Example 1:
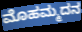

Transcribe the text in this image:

ಮೊಹಮ್ಮದನ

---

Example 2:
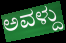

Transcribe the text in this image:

ಅವಳ್ದು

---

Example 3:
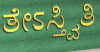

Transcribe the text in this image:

ತೇಽಸ್ತ್ವಿತಿ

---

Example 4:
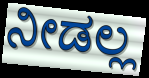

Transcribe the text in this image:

ನೀಡಲ್ಲ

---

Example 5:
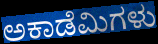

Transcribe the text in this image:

ಅಕಾಡೆಮಿಗಳು